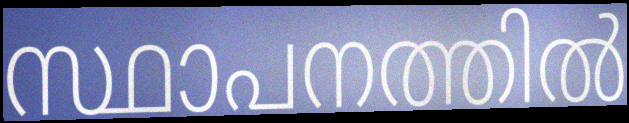
സ്ഥാപനത്തിൽ